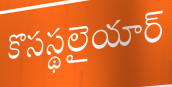
కొసస్థలైయార్